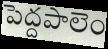
పెద్దపాలెం